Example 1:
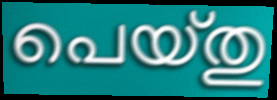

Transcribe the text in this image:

പെയ്തു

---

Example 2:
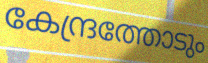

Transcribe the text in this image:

കേന്ദ്രത്തോടും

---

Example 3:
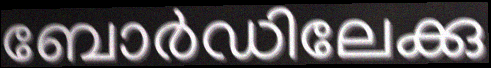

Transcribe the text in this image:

ബോർഡിലേക്കു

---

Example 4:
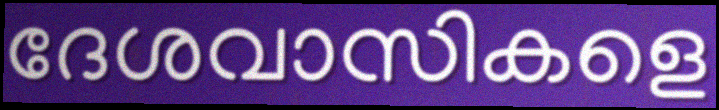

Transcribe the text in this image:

ദേശവാസികളെ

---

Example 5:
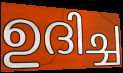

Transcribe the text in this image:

ഉദിച്ച